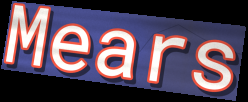
Mears